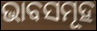
ଭାବସମୂହ